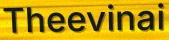
Theevinai